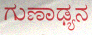
ಗುಣಾಢ್ಯನ